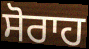
ਸੋਰਾਹ